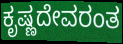
ಕೃಷ್ಣದೇವರಂತ